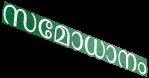
സമോധാനം